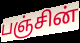
பஞ்சின்